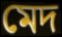
মেদ